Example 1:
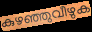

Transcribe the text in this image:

കുഴഞ്ഞുവീഴുക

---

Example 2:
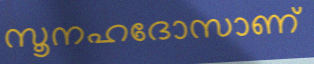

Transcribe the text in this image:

സൂനഹദോസാണ്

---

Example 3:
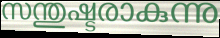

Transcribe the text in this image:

സന്തുഷ്ടരാകുന്നു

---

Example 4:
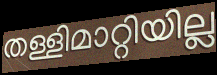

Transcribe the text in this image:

തള്ളിമാറ്റിയില്ല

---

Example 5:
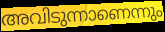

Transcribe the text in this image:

അവിടുന്നാണെന്നും